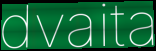
dvaita